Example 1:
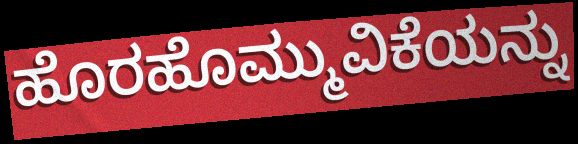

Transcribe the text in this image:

ಹೊರಹೊಮ್ಮುವಿಕೆಯನ್ನು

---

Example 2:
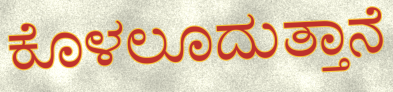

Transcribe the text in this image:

ಕೊಳಲೂದುತ್ತಾನೆ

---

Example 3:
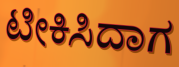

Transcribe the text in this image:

ಟೀಕಿಸಿದಾಗ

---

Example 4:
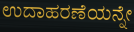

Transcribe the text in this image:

ಉದಾಹರಣೆಯನ್ನೇ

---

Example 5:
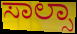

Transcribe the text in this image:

ಸಾಲ್ಸಾ